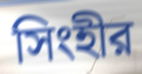
সিংহীর